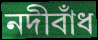
নদীবাঁধ